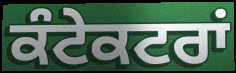
ਕੰਟੇਕਟਰਾਂ